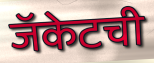
जॅकेटची